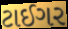
ટાઈગર